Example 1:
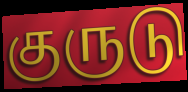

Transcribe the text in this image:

குருடு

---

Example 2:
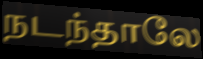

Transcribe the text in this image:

நடந்தாலே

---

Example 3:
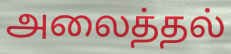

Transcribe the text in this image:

அலைத்தல்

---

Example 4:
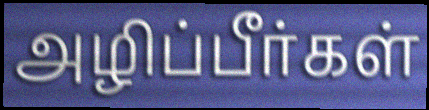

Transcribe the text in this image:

அழிப்பீர்கள்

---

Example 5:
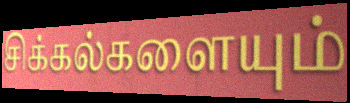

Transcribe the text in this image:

சிக்கல்களையும்